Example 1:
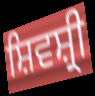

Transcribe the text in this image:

ਸ਼ਿਵਸ਼੍ਰੀ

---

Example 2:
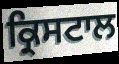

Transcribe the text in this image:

ਕ੍ਰਿਸਟਾਲ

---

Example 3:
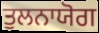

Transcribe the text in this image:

ਤੁਲਨਾਯੋਗ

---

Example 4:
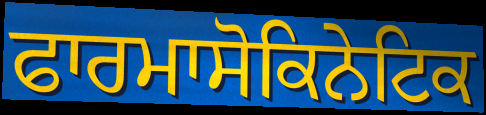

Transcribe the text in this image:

ਫਾਰਮਾਸੋਕਿਨੇਟਿਕ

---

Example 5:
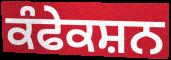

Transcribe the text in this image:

ਕੰਫੇਕਸ਼ਨ